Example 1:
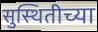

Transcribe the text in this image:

सुस्थितीच्या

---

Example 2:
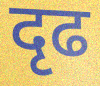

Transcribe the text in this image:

दृढ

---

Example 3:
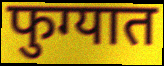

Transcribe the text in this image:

फुग्यात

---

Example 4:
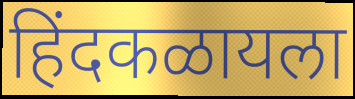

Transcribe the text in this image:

हिंदकळायला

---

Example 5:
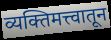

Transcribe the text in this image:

व्यक्तिमत्त्वातून